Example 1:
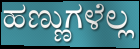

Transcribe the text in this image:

ಹಣ್ಣುಗಳೆಲ್ಲ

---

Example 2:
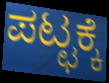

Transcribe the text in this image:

ಪಟ್ಟಕ್ಕೆ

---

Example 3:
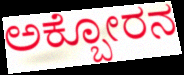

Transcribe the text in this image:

ಅಕ್ಬೋರನ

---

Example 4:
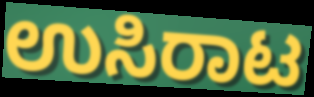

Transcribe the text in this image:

ಉಸಿರಾಟ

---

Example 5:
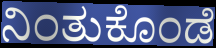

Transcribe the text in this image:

ನಿಂತುಕೊಂಡೆ